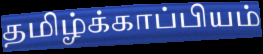
தமிழ்க்காப்பியம்